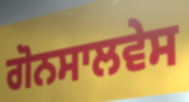
ਗੋਨਸਾਲਵੇਸ